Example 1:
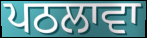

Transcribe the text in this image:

ਪਠਲਾਵਾ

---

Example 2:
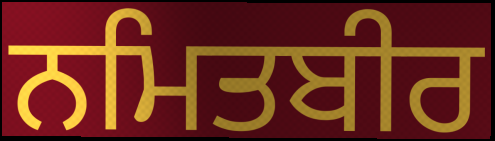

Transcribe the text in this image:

ਨਮਿਤਬੀਰ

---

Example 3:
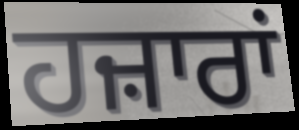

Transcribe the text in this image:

ਹਜ਼ਾਰਾਂ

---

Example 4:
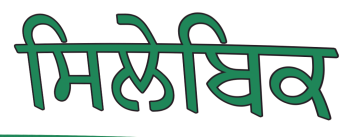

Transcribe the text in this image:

ਸਿਲੇਬਿਕ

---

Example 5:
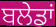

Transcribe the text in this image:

ਬਲੇਡਾਂ